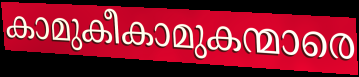
കാമുകീകാമുകന്മാരെ